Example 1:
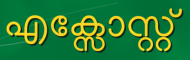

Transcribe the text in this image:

എക്സോസ്റ്റ്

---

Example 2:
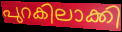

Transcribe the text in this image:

പുറകിലാക്കി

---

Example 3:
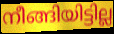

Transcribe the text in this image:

നീങ്ങിയിട്ടില്ല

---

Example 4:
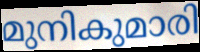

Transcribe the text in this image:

മുനികുമാരി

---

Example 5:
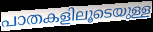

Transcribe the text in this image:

പാതകളിലൂടെയുള്ള